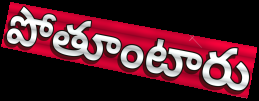
పోతూంటారు